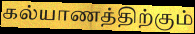
கல்யாணத்திற்கும்